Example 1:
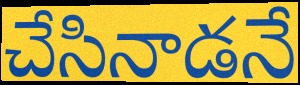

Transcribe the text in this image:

చేసినాడనే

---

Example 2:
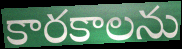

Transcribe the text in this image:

కారకాలను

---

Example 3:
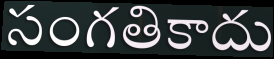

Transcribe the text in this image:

సంగతికాదు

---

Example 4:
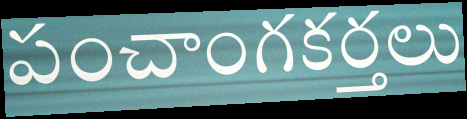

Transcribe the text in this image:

పంచాంగకర్తలు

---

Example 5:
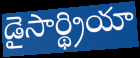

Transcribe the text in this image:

డైసార్థ్రియా